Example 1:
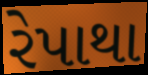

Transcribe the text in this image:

રેપાથા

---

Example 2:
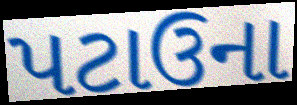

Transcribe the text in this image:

પટાઉના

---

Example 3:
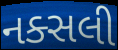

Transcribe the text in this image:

નક્સલી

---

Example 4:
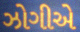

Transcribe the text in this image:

ઝોગીએ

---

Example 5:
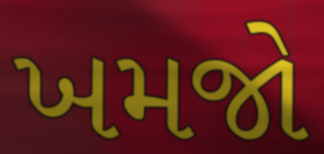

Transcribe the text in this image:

ખમજો